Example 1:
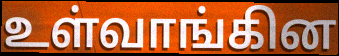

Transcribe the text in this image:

உள்வாங்கின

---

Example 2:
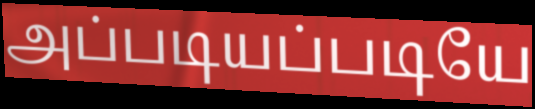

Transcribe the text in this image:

அப்படியப்படியே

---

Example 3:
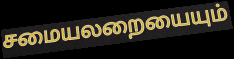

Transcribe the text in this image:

சமையலறையையும்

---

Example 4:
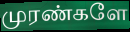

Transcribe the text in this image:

முரண்களே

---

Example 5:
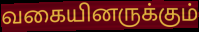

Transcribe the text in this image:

வகையினருக்கும்